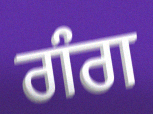
ਗੰਗ